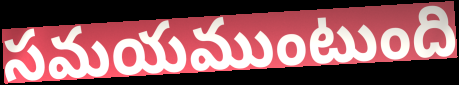
సమయముంటుంది